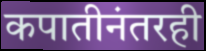
कपातीनंतरही